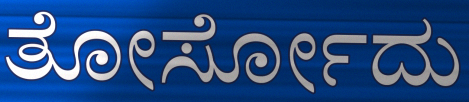
ತೋರ್ಸೋದು